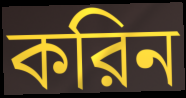
করিন